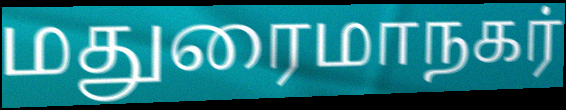
மதுரைமாநகர்